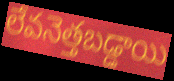
లేవనెత్తబడ్డాయి